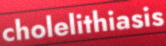
cholelithiasis